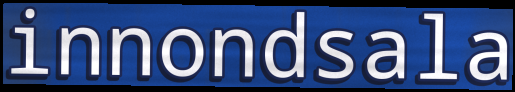
innondsala